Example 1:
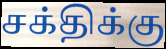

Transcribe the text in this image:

சக்திக்கு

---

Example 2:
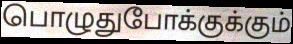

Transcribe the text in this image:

பொழுதுபோக்குக்கும்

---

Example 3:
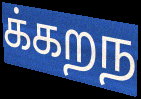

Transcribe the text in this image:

க்கறந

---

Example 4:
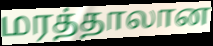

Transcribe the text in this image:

மரத்தாலான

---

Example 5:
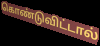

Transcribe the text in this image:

கொண்டுவிட்டால்